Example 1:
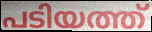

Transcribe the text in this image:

പടിയത്ത്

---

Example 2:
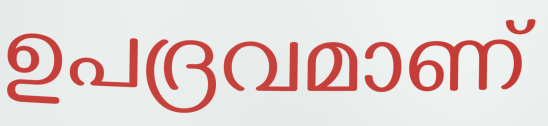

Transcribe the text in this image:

ഉപദ്രവമാണ്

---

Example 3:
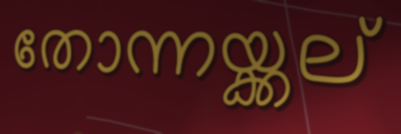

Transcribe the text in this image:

തോന്നയ്ക്കല്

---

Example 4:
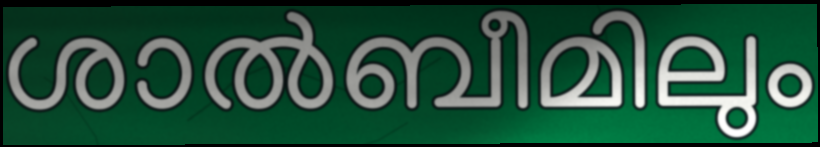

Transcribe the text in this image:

ശാൽബീമിലും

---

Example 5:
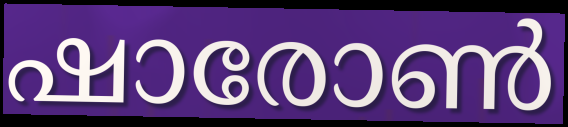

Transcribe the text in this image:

ഷാരോൺ